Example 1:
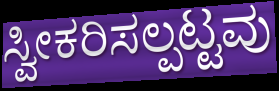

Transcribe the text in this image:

ಸ್ವೀಕರಿಸಲ್ಪಟ್ಟವು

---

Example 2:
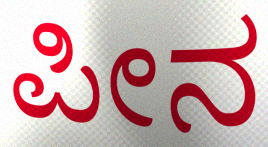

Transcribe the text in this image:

ಪೀನ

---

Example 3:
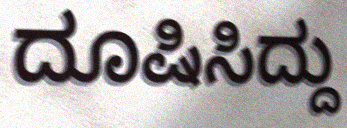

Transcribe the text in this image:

ದೂಷಿಸಿದ್ದು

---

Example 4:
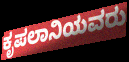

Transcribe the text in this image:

ಕೃಪಲಾನಿಯವರು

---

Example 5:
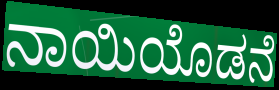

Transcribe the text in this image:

ನಾಯಿಯೊಡನೆ